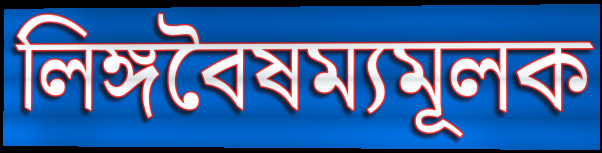
লিঙ্গবৈষম্যমূলক